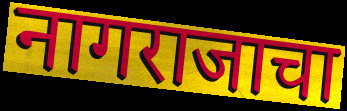
नागराजाचा